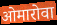
ओमारोवा